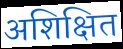
अशिक्षित